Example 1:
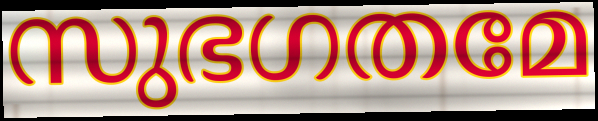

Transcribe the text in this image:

സുഭഗതമേ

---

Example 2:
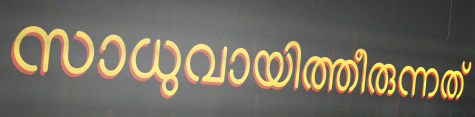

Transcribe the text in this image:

സാധുവായിത്തീരുന്നത്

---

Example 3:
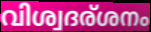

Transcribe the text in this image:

വിശ്വദര്ശനം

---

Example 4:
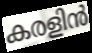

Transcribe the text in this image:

കരളിൻ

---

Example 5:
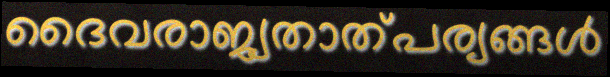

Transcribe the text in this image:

ദൈവരാജ്യതാത്പര്യങ്ങൾ